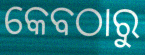
କେବଠାରୁ